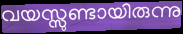
വയസ്സുണ്ടായിരുന്നു